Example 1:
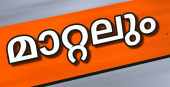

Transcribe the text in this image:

മാറ്റലും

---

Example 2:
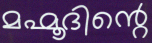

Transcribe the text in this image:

മഹ്മൂദിന്റെ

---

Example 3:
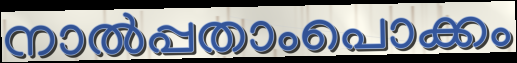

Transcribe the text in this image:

നാൽപ്പതാംപൊക്കം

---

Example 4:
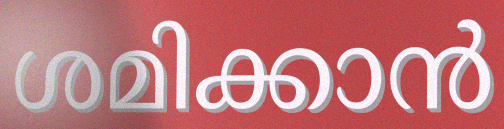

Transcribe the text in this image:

ശമിക്കാൻ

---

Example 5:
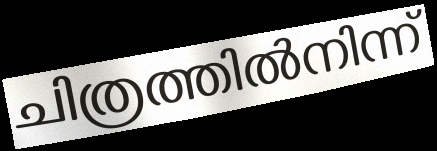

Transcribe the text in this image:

ചിത്രത്തിൽനിന്ന്